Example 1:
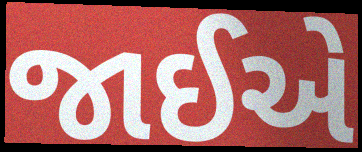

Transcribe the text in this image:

જાઈએ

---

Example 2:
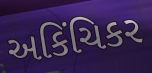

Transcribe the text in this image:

અકિંચિકર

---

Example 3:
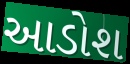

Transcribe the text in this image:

આડોશ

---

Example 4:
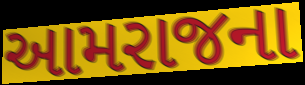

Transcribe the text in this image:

આમરાજના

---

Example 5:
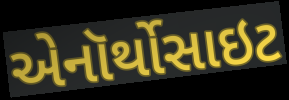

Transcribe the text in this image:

એનૉર્થોસાઇટ